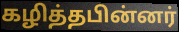
கழித்தபின்னர்